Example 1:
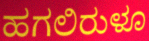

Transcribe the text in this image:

ಹಗಲಿರುಳೂ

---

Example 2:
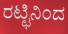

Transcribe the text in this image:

ರಟ್ಟಿನಿಂದ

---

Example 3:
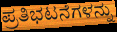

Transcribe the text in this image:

ಪ್ರತಿಭಟನೆಗಳನ್ನು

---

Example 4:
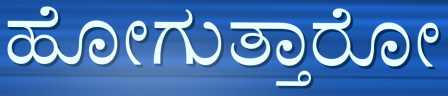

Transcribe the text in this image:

ಹೋಗುತ್ತಾರೋ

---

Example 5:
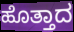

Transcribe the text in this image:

ಹೊತ್ತಾದ